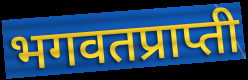
भगवतप्राप्ती